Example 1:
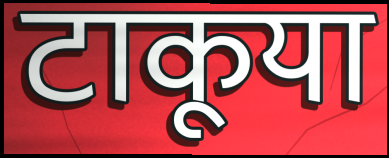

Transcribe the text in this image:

टाकूया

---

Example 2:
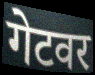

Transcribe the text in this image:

गेटवर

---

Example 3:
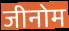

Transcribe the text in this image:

जीनोम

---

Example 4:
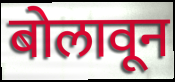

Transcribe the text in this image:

बोलावून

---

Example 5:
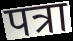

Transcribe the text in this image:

पत्रा